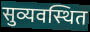
सुव्यवस्थित